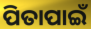
ପିତାପାଇଁ